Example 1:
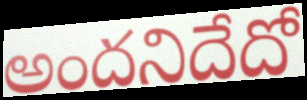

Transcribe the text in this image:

అందనిదేదో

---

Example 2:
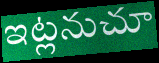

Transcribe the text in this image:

ఇట్లనుచూ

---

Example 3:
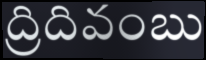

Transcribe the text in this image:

ద్రిదివంబు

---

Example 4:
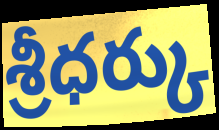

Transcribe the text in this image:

శ్రీధర్కు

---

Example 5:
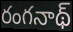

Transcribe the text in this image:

రంగనాథ్